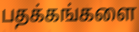
பதக்கங்களை